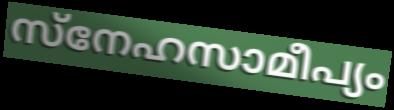
സ്നേഹസാമീപ്യം